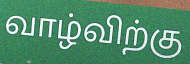
வாழ்விற்கு